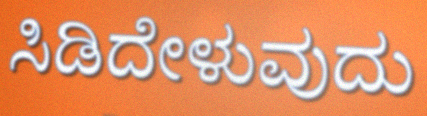
ಸಿಡಿದೇಳುವುದು